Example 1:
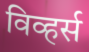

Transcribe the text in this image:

विव्हर्स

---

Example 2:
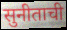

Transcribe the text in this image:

सुनीताची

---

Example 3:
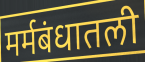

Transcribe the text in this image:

मर्मबंधातली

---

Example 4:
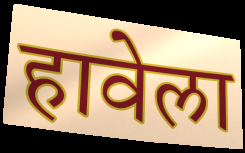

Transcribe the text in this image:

हावेला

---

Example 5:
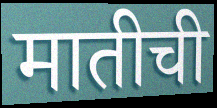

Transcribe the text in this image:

मातीची